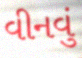
વીનવું